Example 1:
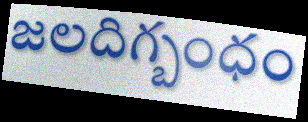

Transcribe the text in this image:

జలదిగ్బంధం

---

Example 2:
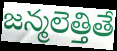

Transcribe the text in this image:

జన్మలెత్తితే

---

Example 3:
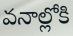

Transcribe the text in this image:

వనాల్లోకి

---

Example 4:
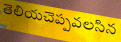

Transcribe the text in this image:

తెలియచెప్పవలసిన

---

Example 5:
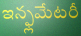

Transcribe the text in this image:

ఇన్ఫ్లమేటరీ